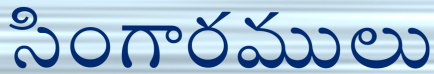
సింగారములు